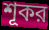
শূকর